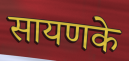
सायणके